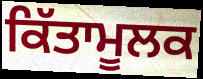
ਕਿੱਤਾਮੂਲਕ